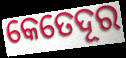
କେତେଦୂର